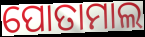
ପୋତାମାଲ